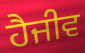
ਹੈਜੀਵ